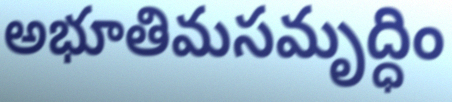
అభూతిమసమృద్ధిం